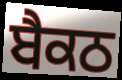
ਬੈਕਠ